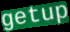
getup